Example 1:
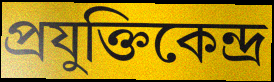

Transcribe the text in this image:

প্রযুক্তিকেন্দ্র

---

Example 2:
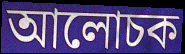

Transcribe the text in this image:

আলোচক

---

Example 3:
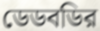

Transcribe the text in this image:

ডেডবডির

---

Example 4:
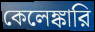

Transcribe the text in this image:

কেলেঙ্কারি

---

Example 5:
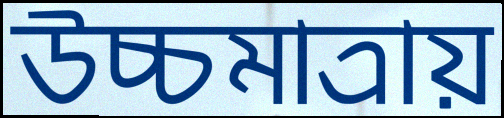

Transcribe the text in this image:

উচ্চমাত্রায়